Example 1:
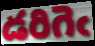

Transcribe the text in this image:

డరిగెఁ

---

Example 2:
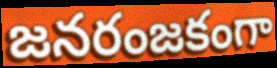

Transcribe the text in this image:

జనరంజకంగా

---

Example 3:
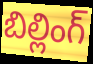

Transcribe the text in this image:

బిల్లింగ్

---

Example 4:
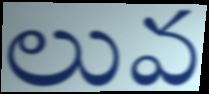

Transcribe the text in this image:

లువ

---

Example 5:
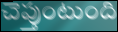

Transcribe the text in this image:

చెప్తుంటుంది